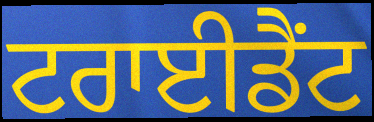
ਟਰਾਈਡੈਂਟ